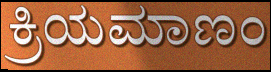
ಕ್ರಿಯಮಾಣಂ